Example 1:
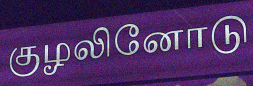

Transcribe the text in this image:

குழலினோடு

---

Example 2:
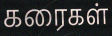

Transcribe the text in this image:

கரைகள்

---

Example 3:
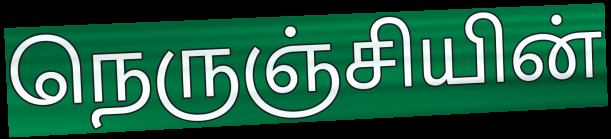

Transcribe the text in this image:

நெருஞ்சியின்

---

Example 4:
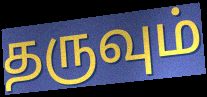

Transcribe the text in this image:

தருவும்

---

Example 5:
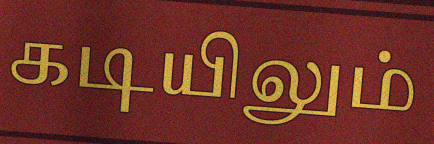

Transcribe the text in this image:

கடியிலும்